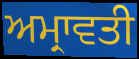
ਅਮ੍ਰਾਵਤੀ